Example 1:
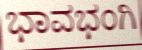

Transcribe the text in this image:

ಭಾವಭಂಗಿ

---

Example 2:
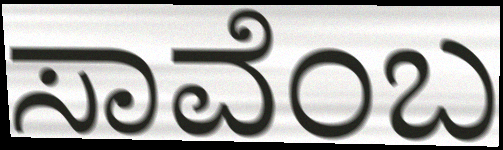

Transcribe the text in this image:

ಸಾವೆಂಬ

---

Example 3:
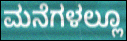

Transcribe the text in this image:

ಮನೆಗಳಲ್ಲೂ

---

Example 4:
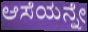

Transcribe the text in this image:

ಆಸೆಯನ್ನೇ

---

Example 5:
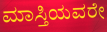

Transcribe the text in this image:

ಮಾಸ್ತಿಯವರೇ